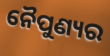
ନୈପୁଣ୍ୟର